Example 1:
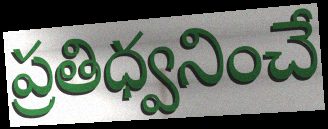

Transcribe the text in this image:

ప్రతిధ్వనించే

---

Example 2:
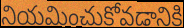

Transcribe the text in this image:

నియమించుకోవడానికి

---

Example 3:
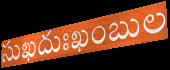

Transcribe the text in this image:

సుఖదుఃఖంబుల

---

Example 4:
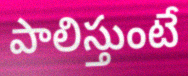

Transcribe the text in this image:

పాలిస్తుంటే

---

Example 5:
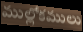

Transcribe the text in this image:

ముల్లోకములు